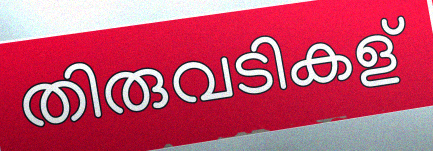
തിരുവടികള്